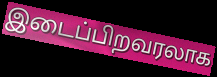
இடைப்பிறவரலாக